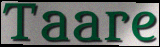
Taare